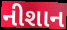
નીશાન